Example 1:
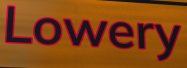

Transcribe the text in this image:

Lowery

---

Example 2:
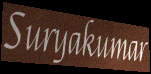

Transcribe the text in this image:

Suryakumar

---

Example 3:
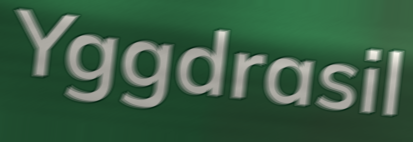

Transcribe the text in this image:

Yggdrasil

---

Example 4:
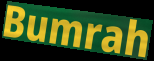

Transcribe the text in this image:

Bumrah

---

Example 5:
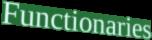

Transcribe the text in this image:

Functionaries